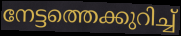
നേട്ടത്തെക്കുറിച്ച്